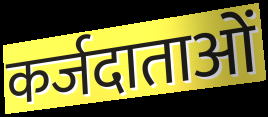
कर्जदाताओं